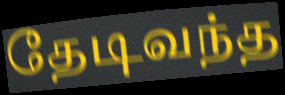
தேடிவந்த